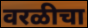
वरळीचा